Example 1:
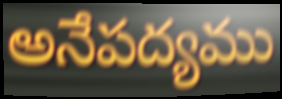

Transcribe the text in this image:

అనేపద్యము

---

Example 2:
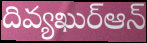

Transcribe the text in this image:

దివ్యఖుర్ఆన్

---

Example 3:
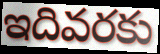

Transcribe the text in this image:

ఇదివరకు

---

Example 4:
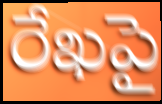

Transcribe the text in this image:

రేఖపై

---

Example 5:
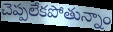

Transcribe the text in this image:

చెప్పలేకపోతున్నాం